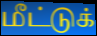
மீட்டுக்